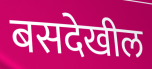
बसदेखील